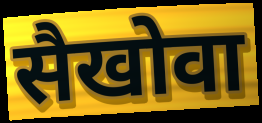
सैखोवा